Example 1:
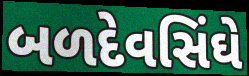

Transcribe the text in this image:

બળદેવસિંઘે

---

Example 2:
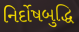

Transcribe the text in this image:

નિર્દોષબુદ્ધિ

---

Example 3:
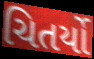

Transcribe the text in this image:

ચિતર્યો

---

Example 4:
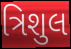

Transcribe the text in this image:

ત્રિશુલ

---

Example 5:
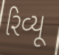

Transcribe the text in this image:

રિવ્યૂ